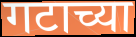
गटाच्या